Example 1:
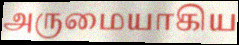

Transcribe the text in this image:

அருமையாகிய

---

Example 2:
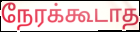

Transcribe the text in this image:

நேரக்கூடாத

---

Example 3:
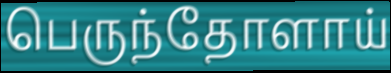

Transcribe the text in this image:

பெருந்தோளாய்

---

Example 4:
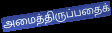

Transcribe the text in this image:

அமைத்திருப்பதைக்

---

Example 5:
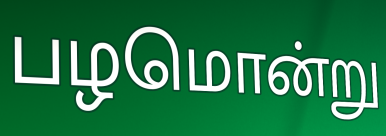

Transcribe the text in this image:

பழமொன்று